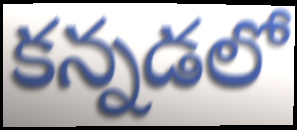
కన్నడలో